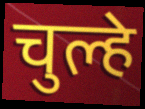
चुल्हे